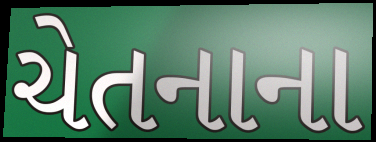
ચેતનાના